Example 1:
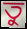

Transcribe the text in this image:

তু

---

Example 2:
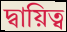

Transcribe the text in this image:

দ্বায়িত্ব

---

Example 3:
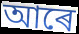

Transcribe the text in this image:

আৰে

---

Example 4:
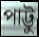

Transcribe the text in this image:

পাট্টু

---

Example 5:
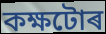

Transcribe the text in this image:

কক্ষটোৰ